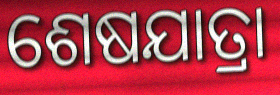
ଶେଷଯାତ୍ରା